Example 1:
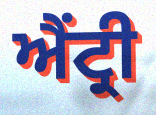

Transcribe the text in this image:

ਐਂਟ੍ਰੀ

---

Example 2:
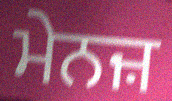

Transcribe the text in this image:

ਮੇਨਜ਼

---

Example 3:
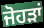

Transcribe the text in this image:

ਜੋਹੜਾਂ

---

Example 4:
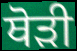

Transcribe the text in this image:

ਥੋੜੀ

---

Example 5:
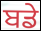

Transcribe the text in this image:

ਬਡੇ